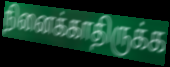
நினைக்காதிருக்க